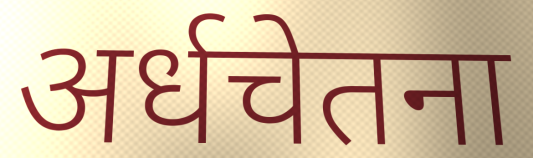
अर्धचेतना